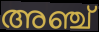
അഞ്ച്